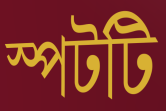
স্পটটি